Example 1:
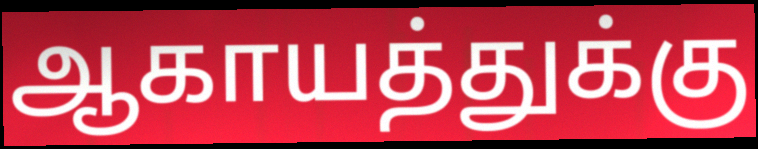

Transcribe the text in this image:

ஆகாயத்துக்கு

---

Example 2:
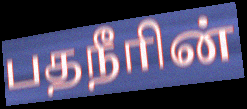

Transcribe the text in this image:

பதநீரின்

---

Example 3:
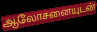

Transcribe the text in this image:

ஆலோசனையுடன்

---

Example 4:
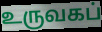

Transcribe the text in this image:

உருவகப்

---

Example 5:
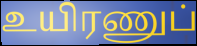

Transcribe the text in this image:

உயிரணுப்